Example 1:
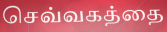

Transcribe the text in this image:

செவ்வகத்தை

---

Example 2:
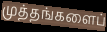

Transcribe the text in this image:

முத்தங்களைப்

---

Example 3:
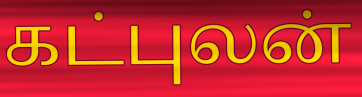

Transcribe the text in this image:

கட்புலன்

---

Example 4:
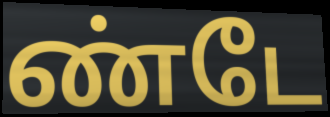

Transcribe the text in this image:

ண்டே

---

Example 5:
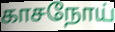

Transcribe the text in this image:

காசநோய்